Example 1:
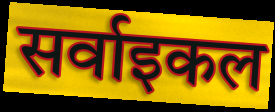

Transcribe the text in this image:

सर्वाइकल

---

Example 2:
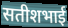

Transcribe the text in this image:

सतीशभाई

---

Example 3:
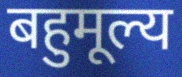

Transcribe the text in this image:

बहुमूल्य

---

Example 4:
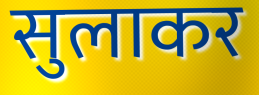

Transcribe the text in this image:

सुलाकर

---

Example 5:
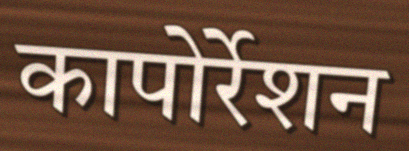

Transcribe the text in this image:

कापोर्रेशन